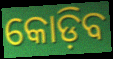
କୋଡ଼ିବ